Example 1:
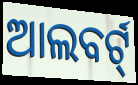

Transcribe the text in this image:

ଆଲବର୍ଟ୍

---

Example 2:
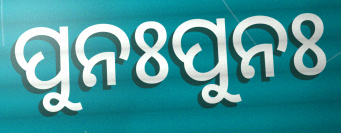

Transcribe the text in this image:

ପୁନଃପୁନଃ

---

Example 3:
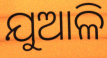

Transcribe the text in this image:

ଯୁଆଳି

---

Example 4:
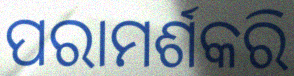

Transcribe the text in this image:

ପରାମର୍ଶକରି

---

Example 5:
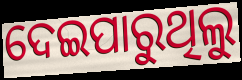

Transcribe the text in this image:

ଦେଇପାରୁଥିଲୁ